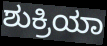
ಶುಕ್ರಿಯಾ